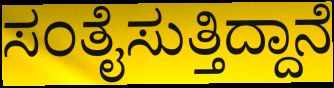
ಸಂತೈಸುತ್ತಿದ್ದಾನೆ